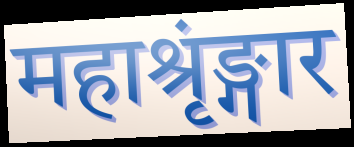
महाश्रृंङ्गार